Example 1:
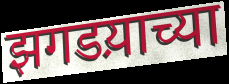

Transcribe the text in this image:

झगडय़ाच्या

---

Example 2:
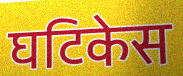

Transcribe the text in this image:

घटिकेस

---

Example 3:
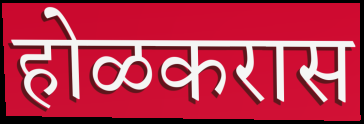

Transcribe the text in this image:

होळकरास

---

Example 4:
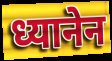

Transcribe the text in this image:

ध्यानेन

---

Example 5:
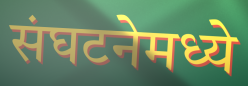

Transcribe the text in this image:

संघटनेमध्ये